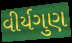
વીર્યગુણ